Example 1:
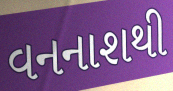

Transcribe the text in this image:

વનનાશથી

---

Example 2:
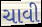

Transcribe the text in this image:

ચાવી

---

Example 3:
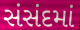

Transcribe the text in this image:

સંસંદમાં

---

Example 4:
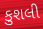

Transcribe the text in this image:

કુશલી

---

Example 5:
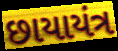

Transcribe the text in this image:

છાયાયંત્ર